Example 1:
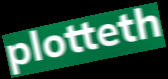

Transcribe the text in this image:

plotteth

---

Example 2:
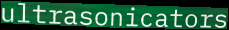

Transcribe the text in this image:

ultrasonicators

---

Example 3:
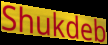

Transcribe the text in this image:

Shukdeb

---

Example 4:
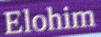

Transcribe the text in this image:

Elohim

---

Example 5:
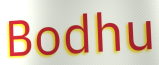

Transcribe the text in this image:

Bodhu